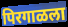
पिरगाळला